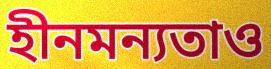
হীনমন্যতাও